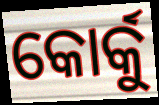
କୋର୍କୁ